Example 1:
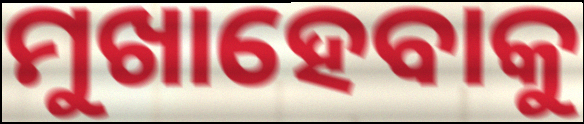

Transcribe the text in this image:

ମୁଖାହେବାକୁ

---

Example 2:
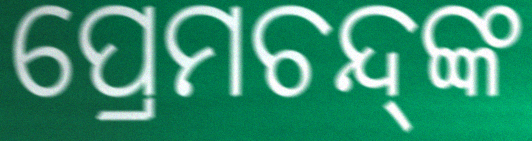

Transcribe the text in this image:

ପ୍ରେମଚନ୍ଦ୍‌ଙ୍କ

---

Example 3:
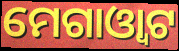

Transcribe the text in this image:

ମେଗାଓ୍ୱାଟ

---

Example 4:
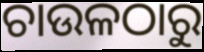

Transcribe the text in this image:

ଚାଉଳଠାରୁ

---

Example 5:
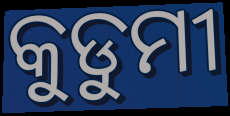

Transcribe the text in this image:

କୁଡୁମୀ